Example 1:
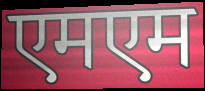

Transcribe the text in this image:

एमएम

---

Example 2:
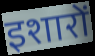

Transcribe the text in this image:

इशारों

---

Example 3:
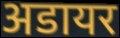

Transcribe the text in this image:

अडायर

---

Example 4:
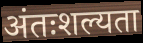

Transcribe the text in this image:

अंतःशल्यता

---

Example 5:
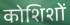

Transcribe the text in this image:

कोशिशों